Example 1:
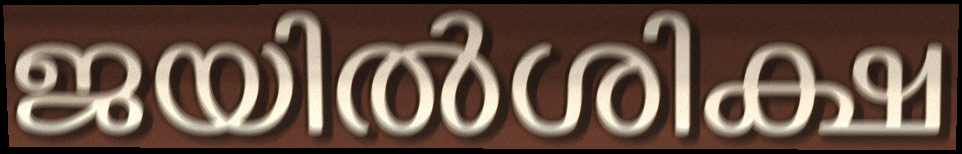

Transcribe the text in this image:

ജയിൽശിക്ഷ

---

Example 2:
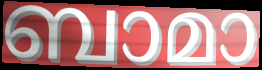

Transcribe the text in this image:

ബാമാ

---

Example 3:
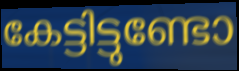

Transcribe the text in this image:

കേട്ടിട്ടുണ്ടോ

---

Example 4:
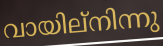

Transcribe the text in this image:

വായില്നിന്നു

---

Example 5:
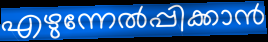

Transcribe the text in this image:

എഴുന്നേൽപ്പിക്കാൻ